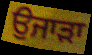
ਉਜਾੜਾ